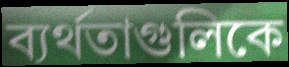
ব্যর্থতাগুলিকে